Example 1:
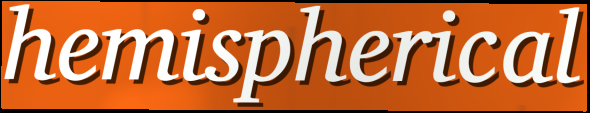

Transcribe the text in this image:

hemispherical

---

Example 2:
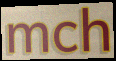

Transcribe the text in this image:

mch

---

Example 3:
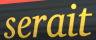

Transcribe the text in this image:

serait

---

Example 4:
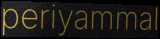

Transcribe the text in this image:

periyammal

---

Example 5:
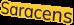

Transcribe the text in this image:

Saracens